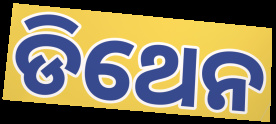
ଡିଥେନ